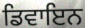
ਡਿਵਾਇਨ